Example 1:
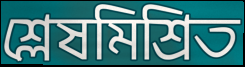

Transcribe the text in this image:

শ্লেষমিশ্রিত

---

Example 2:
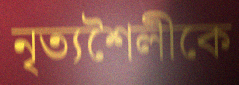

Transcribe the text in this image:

নৃত্যশৈলীকে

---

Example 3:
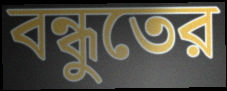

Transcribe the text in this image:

বন্ধুতের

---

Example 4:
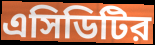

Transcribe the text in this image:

এসিডিটির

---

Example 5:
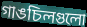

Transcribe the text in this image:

গাঙচিলগুলো